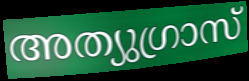
അത്യുഗ്രാസ്